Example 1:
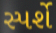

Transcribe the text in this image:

સ્પર્શે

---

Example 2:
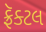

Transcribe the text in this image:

ફ્રૅક્ટલ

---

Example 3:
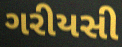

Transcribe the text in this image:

ગરીયસી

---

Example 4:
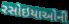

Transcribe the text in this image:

રસોઇયાઓની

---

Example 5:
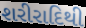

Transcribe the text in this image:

શરીરાદિથી